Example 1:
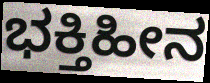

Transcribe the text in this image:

ಭಕ್ತಿಹೀನ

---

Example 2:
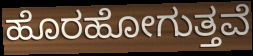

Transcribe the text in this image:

ಹೊರಹೋಗುತ್ತವೆ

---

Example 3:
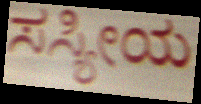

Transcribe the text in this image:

ಸಸ್ಯೀಯ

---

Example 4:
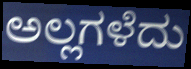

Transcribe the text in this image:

ಅಲ್ಲಗಳೆದು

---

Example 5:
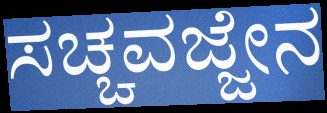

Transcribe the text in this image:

ಸಚ್ಚವಜ್ಜೇನ